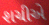
શચીએ